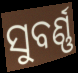
ସୁବର୍ଣ୍ଣ